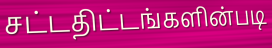
சட்டதிட்டங்களின்படி